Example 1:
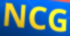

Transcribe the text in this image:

NCG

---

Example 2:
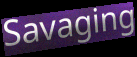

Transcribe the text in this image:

Savaging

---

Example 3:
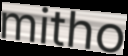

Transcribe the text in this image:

mitho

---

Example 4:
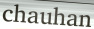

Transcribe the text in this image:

chauhan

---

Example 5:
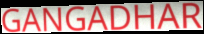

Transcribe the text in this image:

GANGADHAR